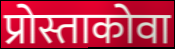
प्रोस्ताकोवा